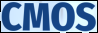
CMOS